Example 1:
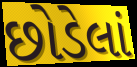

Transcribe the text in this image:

છોડેલાં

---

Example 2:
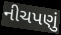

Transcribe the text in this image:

નીચપણું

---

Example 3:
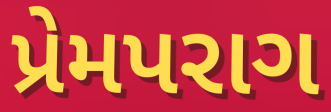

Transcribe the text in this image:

પ્રેમપરાગ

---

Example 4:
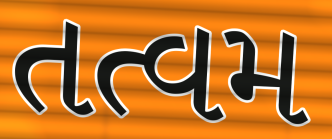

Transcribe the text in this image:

તત્વમ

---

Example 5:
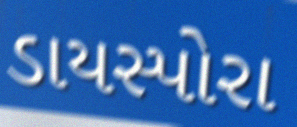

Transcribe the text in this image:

ડાયસ્પોરા